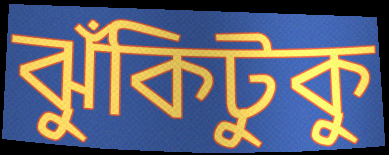
ঝুঁকিটুকু